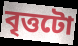
বৃত্তটো